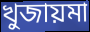
খুজায়মা